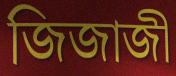
জিজাজী